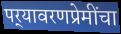
पर्यावरणप्रेमींचा